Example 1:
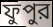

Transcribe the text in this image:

ফুপুর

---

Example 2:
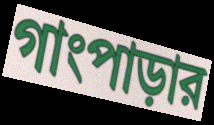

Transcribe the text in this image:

গাংপাড়ার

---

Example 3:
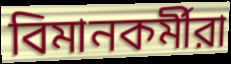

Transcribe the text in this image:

বিমানকর্মীরা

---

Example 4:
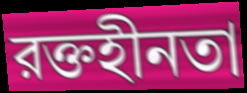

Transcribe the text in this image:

রক্তহীনতা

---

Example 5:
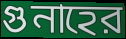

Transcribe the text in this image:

গুনাহের